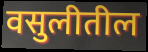
वसुलीतील